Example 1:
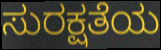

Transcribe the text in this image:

ಸುರಕ್ಷತೆಯ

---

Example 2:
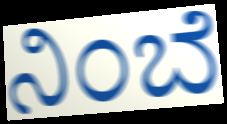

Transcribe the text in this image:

ನಿಂಬೆ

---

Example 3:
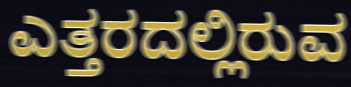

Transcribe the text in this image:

ಎತ್ತರದಲ್ಲಿರುವ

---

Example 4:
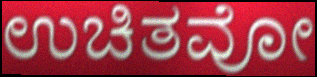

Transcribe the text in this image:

ಉಚಿತವೋ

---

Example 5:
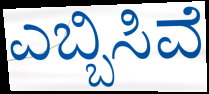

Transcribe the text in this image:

ಎಬ್ಬಿಸಿವೆ